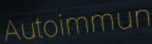
Autoimmun